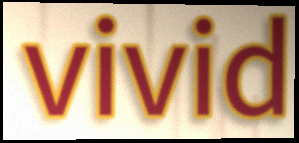
vivid